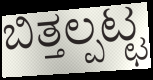
ಬಿತ್ತಲ್ಪಟ್ಟ